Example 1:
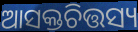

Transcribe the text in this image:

ଆସକ୍ତଚିତ୍ତସ୍ୟ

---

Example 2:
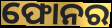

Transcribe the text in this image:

ଫୋନର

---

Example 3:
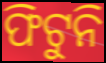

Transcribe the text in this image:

ଫିଟୁନି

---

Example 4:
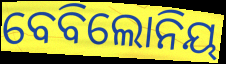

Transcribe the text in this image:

ବେବିଲୋନିୟ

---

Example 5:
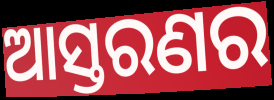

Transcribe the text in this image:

ଆସ୍ତରଣର